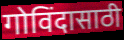
गोविंदासाठी